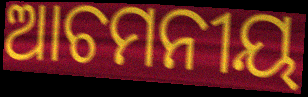
ଆଚମନୀୟ